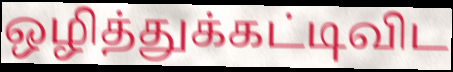
ஒழித்துக்கட்டிவிட